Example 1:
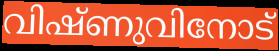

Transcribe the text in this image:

വിഷ്ണുവിനോട്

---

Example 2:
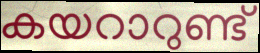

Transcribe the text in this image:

കയറാറുണ്ട്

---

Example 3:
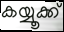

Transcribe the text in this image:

കയ്യൂക്ക്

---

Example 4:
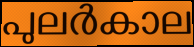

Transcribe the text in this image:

പുലർകാല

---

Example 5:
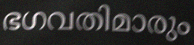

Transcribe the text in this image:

ഭഗവതിമാരും